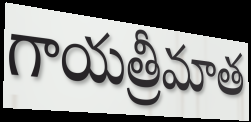
గాయత్రీమాత